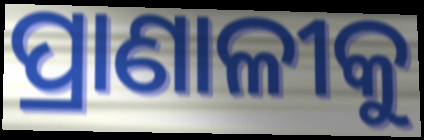
ପ୍ରାଣାଳୀକୁ